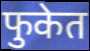
फुकेत